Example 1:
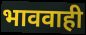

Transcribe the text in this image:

भाववाही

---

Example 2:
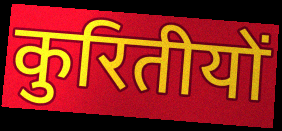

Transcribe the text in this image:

कुरितीयों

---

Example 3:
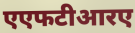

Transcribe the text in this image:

एएफटीआरए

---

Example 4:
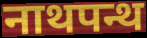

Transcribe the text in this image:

नाथपन्थ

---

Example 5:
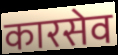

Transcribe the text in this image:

कारसेव